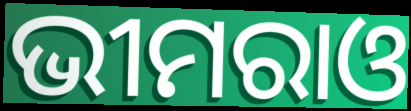
ଭୀମରାଓ